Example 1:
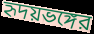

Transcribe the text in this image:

হৃদয়ভঙ্গের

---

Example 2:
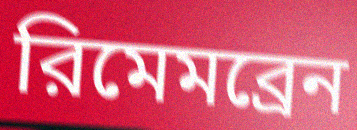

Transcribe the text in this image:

রিমেমব্রেন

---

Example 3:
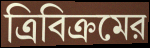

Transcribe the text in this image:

ত্রিবিক্রমের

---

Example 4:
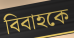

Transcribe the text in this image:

বিবাহকে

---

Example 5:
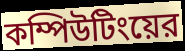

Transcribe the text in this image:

কম্পিউটিংয়ের